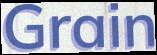
Grain